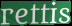
rettis